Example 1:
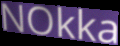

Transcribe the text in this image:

NOkka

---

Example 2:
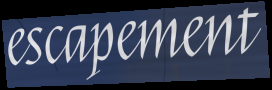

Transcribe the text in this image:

escapement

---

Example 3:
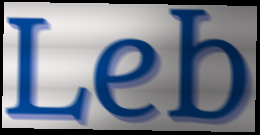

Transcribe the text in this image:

Leb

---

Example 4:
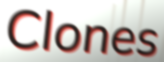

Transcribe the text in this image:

Clones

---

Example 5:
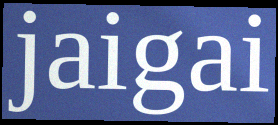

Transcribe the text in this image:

jaigai